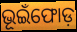
ଭୂଇଁଫୋଡ଼